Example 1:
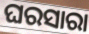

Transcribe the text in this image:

ଘରସାରା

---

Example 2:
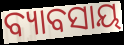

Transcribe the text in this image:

ବ୍ୟାବସାୟ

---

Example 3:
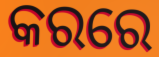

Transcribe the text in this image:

କରରେ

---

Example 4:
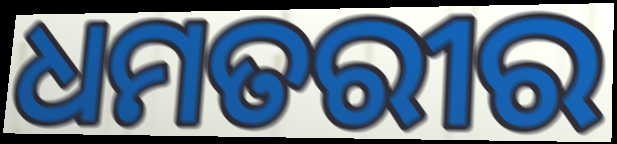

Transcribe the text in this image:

ଧମତରୀର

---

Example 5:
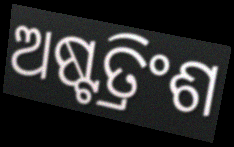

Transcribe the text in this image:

ଅଷ୍ଟତ୍ରିଂଶ